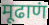
मूढाणं